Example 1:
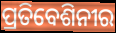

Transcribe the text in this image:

ପ୍ରତିବେଶିନୀର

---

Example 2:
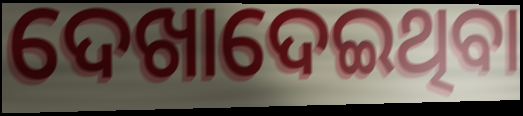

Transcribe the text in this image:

ଦେଖାଦେଇଥିବା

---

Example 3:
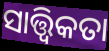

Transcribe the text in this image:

ସାତ୍ତ୍ବିକତା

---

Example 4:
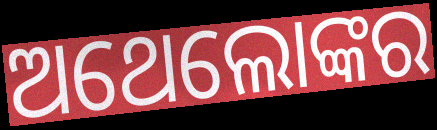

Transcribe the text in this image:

ଅଥେଲୋଙ୍କର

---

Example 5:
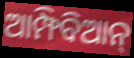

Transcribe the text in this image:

ଆମ୍ଫିବିଆନ୍